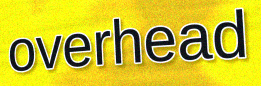
overhead